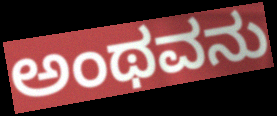
ಅಂಥವನು